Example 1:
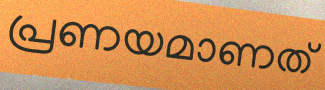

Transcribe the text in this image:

പ്രണയമാണത്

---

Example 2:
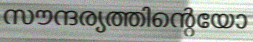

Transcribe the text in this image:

സൗന്ദര്യത്തിന്റെയോ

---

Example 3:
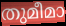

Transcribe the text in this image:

തുമീമാ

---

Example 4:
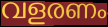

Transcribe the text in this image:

വളരണം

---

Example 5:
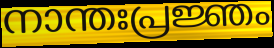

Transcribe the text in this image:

നാന്തഃപ്രജ്ഞം